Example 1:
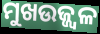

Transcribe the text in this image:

ମୁଖଉଜ୍ଜ୍ୱଳ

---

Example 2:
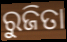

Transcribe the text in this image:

ରୁଜିତା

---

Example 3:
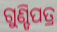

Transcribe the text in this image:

ଗୁଣ୍ଡିପତ୍ର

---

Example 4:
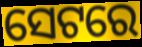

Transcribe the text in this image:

ସେଟରେ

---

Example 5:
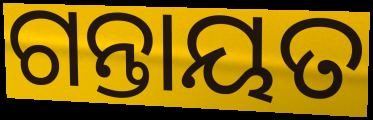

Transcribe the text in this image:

ଗନ୍ତାୟତ